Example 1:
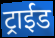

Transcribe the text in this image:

ट्राईड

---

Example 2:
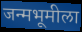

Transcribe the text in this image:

जन्मभूमीला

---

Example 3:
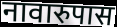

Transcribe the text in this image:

नावारुपास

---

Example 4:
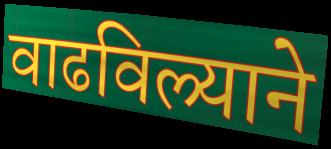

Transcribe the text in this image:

वाढविल्याने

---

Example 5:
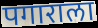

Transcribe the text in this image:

पगाराला